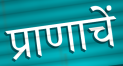
प्राणाचें